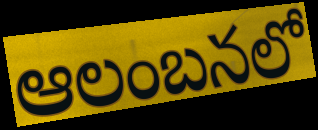
ఆలంబనలో